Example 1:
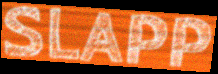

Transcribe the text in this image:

SLAPP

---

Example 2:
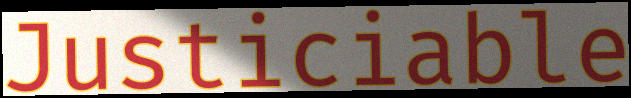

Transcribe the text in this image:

Justiciable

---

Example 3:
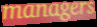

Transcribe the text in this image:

managers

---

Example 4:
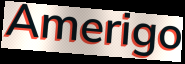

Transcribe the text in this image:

Amerigo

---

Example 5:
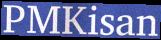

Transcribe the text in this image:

PMKisan